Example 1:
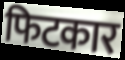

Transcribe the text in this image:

फिटकार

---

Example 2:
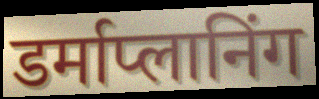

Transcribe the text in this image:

डर्माप्लानिंग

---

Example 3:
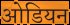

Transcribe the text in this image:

ओडियन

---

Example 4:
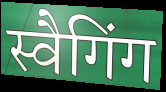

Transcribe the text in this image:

स्वैगिंग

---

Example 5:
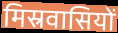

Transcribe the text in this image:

मिस्रवासियों